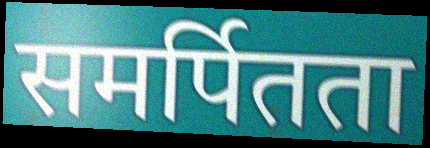
समर्पितता